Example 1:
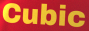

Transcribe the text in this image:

Cubic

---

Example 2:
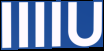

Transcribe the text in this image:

IIIIU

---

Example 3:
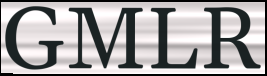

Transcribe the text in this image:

GMLR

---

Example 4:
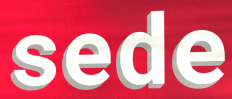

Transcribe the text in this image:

sede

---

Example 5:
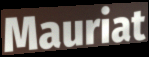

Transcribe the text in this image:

Mauriat